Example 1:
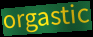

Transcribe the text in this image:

orgastic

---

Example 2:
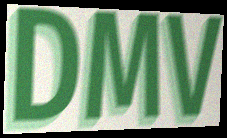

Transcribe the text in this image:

DMV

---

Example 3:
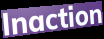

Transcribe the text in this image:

Inaction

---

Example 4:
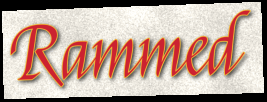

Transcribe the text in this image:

Rammed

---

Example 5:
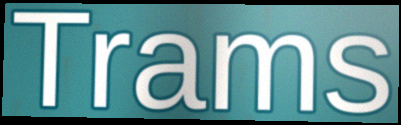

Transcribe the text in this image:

Trams